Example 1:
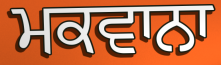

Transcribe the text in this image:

ਮਕਵਾਨਾ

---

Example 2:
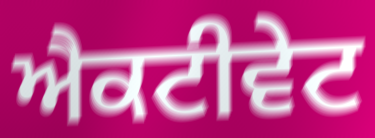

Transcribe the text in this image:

ਐਕਟੀਵੇਟ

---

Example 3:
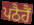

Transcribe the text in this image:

ਪਠੈਹੈਂ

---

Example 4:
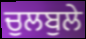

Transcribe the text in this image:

ਚੁਲਬੁਲੇ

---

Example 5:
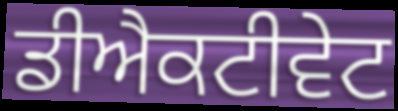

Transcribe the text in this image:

ਡੀਐਕਟੀਵੇਟ